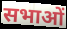
सभाओं